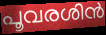
പൂവരശിൻ